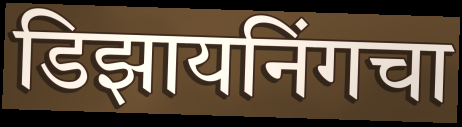
डिझायनिंगचा